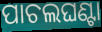
ପାଚଲଘଣ୍ଟା